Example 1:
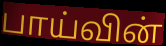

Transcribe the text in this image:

பாய்வின்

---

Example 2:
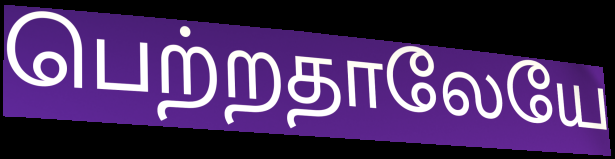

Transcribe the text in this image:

பெற்றதாலேயே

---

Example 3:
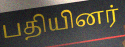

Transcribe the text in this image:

பதியினர்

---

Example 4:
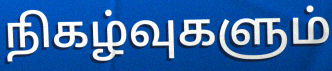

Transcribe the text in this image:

நிகழ்வுகளும்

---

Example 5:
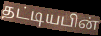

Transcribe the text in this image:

தட்டியபின்